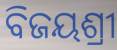
ବିଜୟଶ୍ରୀ